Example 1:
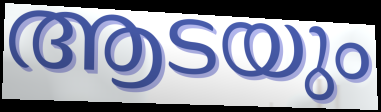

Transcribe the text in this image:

ആടയും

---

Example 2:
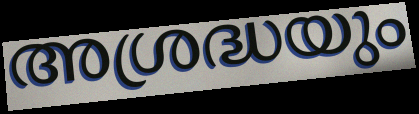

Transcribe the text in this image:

അശ്രദ്ധയും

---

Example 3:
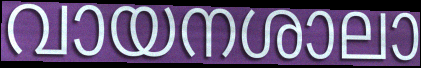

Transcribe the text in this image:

വായനശാലാ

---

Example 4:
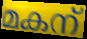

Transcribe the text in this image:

മകന്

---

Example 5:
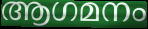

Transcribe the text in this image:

ആഗമനം